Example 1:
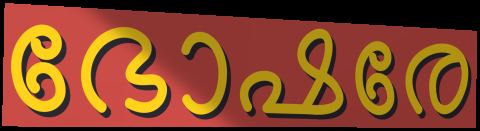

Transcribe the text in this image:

ഭോഷരേ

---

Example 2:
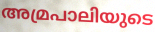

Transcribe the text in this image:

അമ്രപാലിയുടെ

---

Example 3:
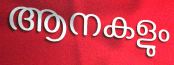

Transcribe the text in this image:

ആനകളും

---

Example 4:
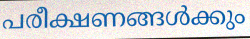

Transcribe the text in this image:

പരീക്ഷണങ്ങൾക്കും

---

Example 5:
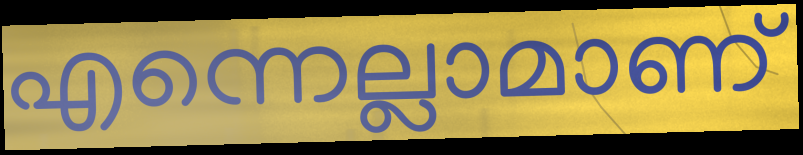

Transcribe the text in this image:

എന്നെല്ലാമാണ്